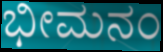
ಭೀಮನಂ